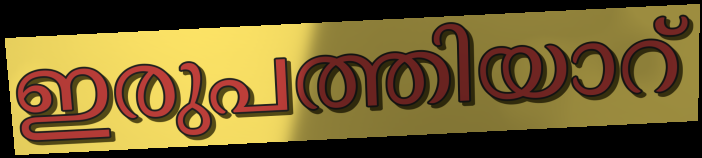
ഇരുപത്തിയാറ്